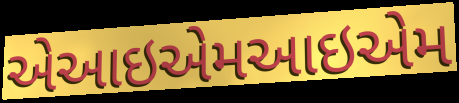
એઆઇએમઆઇએમ